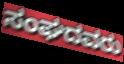
ಸಂಘದವರು